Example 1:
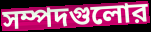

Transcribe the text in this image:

সম্পদগুলোর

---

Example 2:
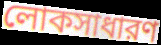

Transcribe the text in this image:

লোকসাধারণ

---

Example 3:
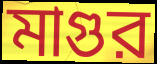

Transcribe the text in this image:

মাগুর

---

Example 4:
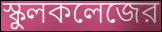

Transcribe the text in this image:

স্কুলকলেজের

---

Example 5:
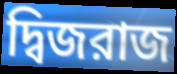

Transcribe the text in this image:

দ্বিজরাজ